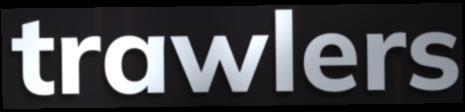
trawlers